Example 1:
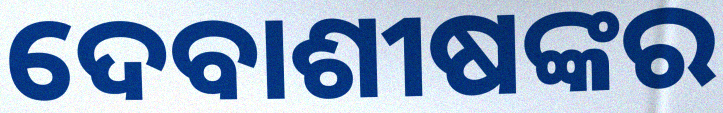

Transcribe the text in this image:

ଦେବାଶୀଷଙ୍କର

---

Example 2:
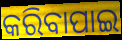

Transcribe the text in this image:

କରିବାପାଇ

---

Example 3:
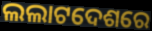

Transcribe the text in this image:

ଲଲାଟଦେଶରେ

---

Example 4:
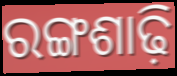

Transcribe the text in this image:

ରଙ୍ଗଶାଢ଼ି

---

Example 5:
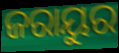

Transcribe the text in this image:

ଜରାୟୁର